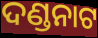
ଦଣ୍ଡନାଟ